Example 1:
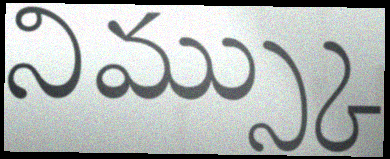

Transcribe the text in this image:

నిమ్స్కు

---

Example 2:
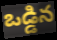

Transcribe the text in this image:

ఒడ్డిన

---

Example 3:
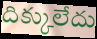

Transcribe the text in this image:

దిక్కులేదు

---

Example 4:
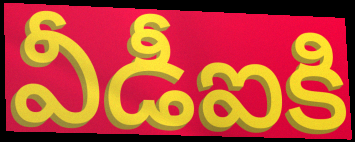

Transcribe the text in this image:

వీడీఐకి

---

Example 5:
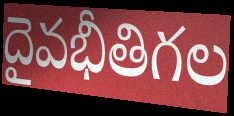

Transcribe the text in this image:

దైవభీతిగల